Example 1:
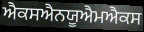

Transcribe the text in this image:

ਐਕਸਐਨਯੂਐਮਐਕਸ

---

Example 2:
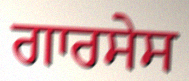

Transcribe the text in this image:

ਗਾਰਸੇਸ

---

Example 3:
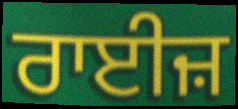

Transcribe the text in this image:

ਰਾਈਜ਼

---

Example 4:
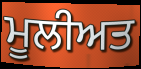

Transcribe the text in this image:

ਮੂਲੀਅਤ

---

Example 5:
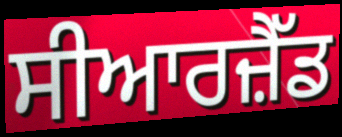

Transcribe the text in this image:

ਸੀਆਰਜ਼ੈੱਡ